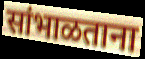
सांभाळताना